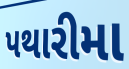
પથારીમા